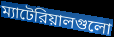
ম্যাটেরিয়ালগুলো